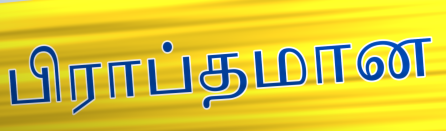
பிராப்தமான